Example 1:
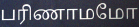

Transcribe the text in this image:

பரிணாமமோ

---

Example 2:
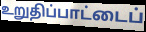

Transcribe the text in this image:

உறுதிப்பாட்டைப்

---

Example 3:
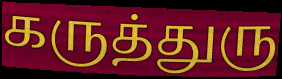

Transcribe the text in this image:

கருத்துரு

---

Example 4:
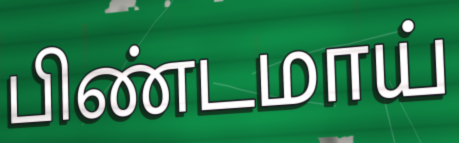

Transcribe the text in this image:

பிண்டமாய்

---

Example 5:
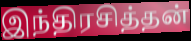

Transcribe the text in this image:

இந்திரசித்தன்